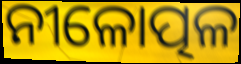
ନୀଳୋତ୍ପଳ